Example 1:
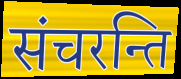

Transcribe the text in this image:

संचरन्ति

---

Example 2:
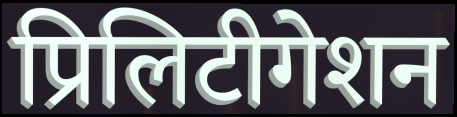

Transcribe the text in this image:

प्रिलिटीगेशन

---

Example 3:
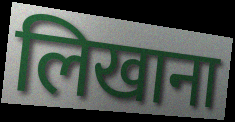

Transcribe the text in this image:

लिखाना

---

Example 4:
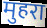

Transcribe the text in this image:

मुहरा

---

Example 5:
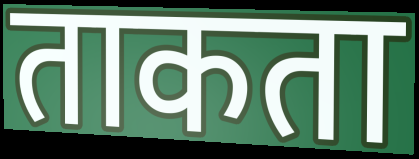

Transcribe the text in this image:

ताकता